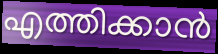
എത്തിക്കാൻ